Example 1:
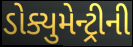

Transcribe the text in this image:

ડોક્યુમેન્ટ્રીની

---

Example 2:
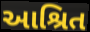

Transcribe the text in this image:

આશ્રિત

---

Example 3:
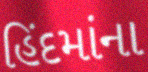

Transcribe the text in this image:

હિંદમાંના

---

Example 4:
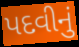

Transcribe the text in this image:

પદવીનું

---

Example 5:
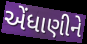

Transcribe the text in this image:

એંધાણીને